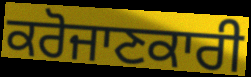
ਕਰੋਜਾਣਕਾਰੀ